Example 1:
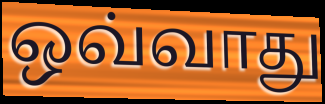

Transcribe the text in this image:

ஒவ்வாது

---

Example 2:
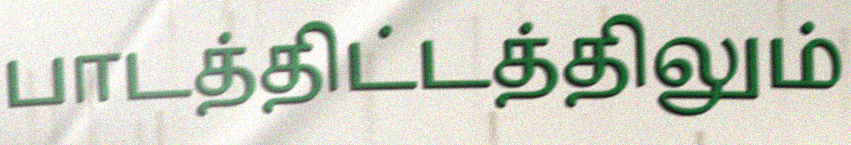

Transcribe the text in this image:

பாடத்திட்டத்திலும்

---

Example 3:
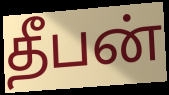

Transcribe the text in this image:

தீபன்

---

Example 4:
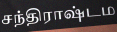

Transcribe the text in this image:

சந்திராஷ்டம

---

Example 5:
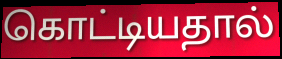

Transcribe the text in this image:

கொட்டியதால்